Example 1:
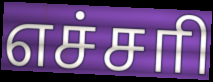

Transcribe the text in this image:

எச்சரி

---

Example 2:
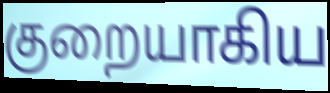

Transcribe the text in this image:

குறையாகிய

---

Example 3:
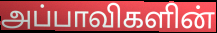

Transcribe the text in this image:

அப்பாவிகளின்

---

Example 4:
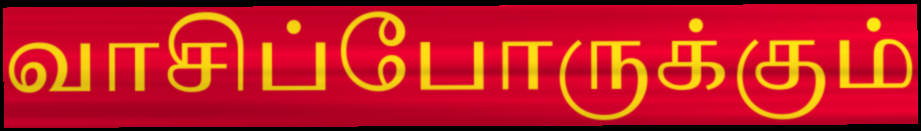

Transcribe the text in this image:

வாசிப்போருக்கும்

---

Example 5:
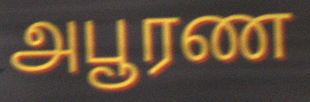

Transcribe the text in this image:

அபூரண